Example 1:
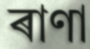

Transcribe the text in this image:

ৰাণা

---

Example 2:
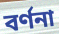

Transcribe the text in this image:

বৰ্ণনা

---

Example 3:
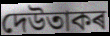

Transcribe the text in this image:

দেউতাকৰ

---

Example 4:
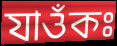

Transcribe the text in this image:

যাওঁকঃ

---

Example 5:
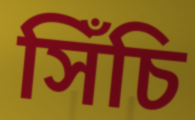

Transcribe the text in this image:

সিঁচি